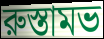
রুস্তামভ